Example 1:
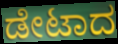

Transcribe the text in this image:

ಡೇಟಾದ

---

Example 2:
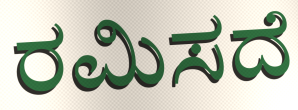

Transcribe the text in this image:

ರಮಿಸದೆ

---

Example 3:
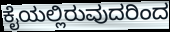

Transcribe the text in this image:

ಕೈಯಲ್ಲಿರುವುದರಿಂದ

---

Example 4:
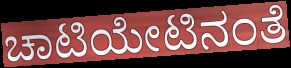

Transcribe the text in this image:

ಚಾಟಿಯೇಟಿನಂತೆ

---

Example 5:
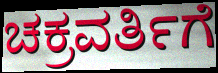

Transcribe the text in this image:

ಚಕ್ರವರ್ತಿಗೆ